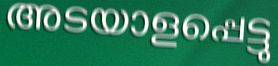
അടയാളപ്പെട്ടു